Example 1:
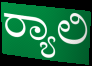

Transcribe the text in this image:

ರ‍್ಯಾಲಿ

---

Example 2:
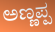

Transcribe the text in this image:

ಅಣ್ಣಪ್ಪ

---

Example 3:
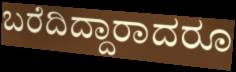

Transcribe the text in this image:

ಬರೆದಿದ್ದಾರಾದರೂ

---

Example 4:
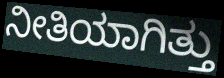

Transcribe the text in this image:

ನೀತಿಯಾಗಿತ್ತು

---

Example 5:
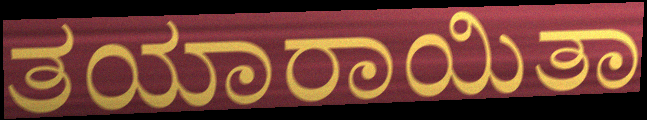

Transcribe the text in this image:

ತಯಾರಾಯಿತಾ